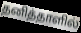
தனித்தாளில்